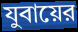
যুবায়ের